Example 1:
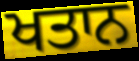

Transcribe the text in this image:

ਖਤਾਨ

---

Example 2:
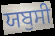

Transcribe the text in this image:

ਯਬੁਸੀ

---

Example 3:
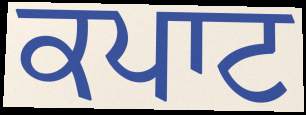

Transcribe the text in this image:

ਕਪਾਟ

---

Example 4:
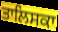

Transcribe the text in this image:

ਤਾਲਿਸਕਾ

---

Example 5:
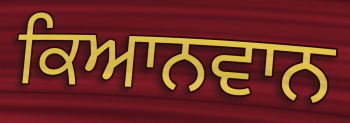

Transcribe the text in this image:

ਕਿਆਨਵਾਨ